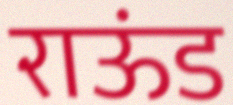
राऊंड